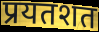
प्रयतशत